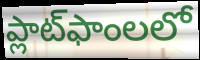
ప్లాట్‌ఫాంలలో